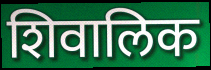
शिवालिक